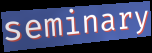
seminary